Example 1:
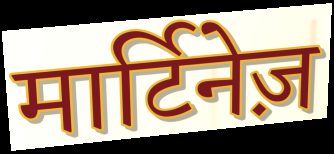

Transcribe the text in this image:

मार्टिनेज़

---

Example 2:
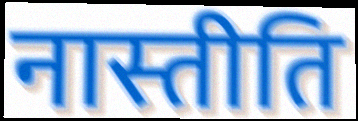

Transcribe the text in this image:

नास्तीति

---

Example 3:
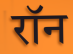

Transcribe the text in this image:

रॉन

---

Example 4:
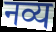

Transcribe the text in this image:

नव्य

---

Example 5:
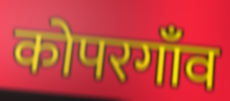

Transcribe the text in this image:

कोपरगाँव